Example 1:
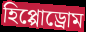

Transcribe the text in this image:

হিপ্পোড্রোম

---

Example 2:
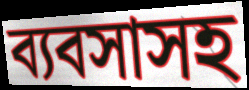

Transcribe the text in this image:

ব্যবসাসহ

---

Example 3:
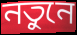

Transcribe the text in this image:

নতুনে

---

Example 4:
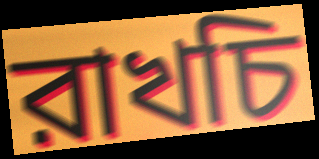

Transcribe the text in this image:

রাখচি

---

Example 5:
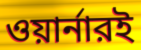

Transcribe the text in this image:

ওয়ার্নারই